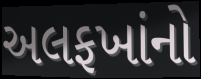
અલફખાંનો